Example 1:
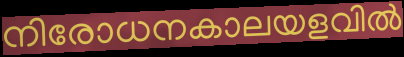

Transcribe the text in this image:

നിരോധനകാലയളവിൽ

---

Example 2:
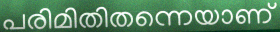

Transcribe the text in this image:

പരിമിതിതന്നെയാണ്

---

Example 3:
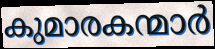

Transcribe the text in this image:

കുമാരകന്മാർ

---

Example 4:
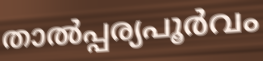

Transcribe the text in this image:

താൽപ്പര്യപൂർവം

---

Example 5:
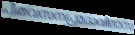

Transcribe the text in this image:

പീതവസനപ്രമദാവിലാസ